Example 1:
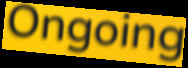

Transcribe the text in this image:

Ongoing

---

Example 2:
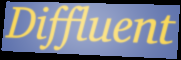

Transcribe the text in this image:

Diffluent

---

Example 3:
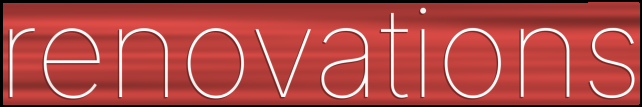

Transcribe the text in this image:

renovations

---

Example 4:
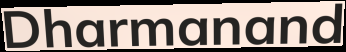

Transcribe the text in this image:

Dharmanand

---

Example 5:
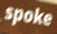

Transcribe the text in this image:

spoke